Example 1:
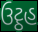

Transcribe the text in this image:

ઉટ્ઠહ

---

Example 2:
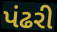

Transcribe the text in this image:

પંઢરી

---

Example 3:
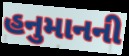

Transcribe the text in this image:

હનુમાનની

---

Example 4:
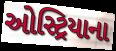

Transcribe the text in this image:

ઓસ્ટ્રિયાના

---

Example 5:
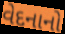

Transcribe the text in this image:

વેદનાનો